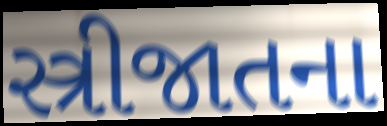
સ્ત્રીજાતના